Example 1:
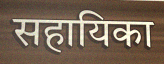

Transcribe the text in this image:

सहायिका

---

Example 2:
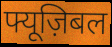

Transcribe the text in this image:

फ्यूज़िबल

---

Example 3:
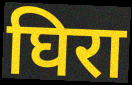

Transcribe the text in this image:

घिरा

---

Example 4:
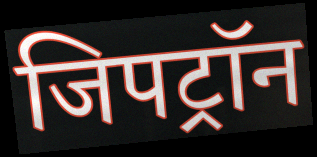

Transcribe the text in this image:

जिपट्रॉन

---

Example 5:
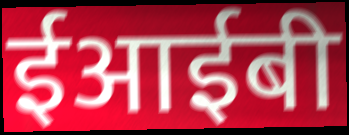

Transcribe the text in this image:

ईआईबी